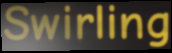
Swirling